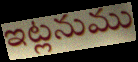
ఇట్లనుము